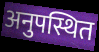
अनुपस्थित